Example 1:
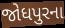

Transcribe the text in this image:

જોધપુરના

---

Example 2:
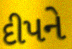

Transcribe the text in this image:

દીપને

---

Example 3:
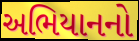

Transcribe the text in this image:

અભિયાનનો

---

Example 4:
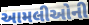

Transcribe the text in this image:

આમલીઓની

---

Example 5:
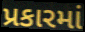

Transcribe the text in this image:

પ્રકારમાં